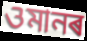
ওমানৰ